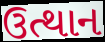
ઉત્થાન